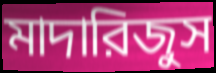
মাদারিজুস